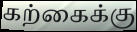
கற்கைக்கு